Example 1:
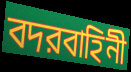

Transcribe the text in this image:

বদরবাহিনী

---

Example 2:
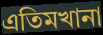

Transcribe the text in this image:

এতিমখানা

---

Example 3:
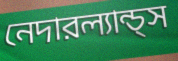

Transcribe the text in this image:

নেদারল্যান্ড্‌স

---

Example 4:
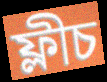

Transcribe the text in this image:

ফ্লীচ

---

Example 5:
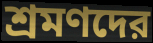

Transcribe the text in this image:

শ্রমণদের